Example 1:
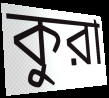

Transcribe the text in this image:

কুরা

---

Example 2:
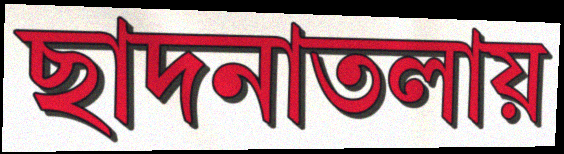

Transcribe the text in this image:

ছাদনাতলায়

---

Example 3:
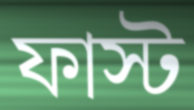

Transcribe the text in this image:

ফাস্ট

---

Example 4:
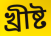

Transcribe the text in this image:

খ্রীষ্ট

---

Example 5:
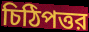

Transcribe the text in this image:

চিঠিপত্তর